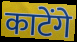
काटेंगे